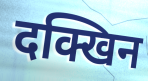
दक्खिन